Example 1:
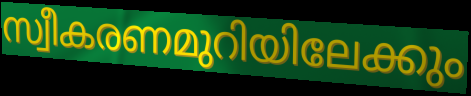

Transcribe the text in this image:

സ്വീകരണമുറിയിലേക്കും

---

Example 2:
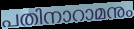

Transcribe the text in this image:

പതിനാറാമനും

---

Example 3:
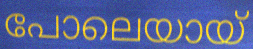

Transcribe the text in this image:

പോലെയായ്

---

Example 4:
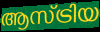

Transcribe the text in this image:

ആസ്ട്രിയ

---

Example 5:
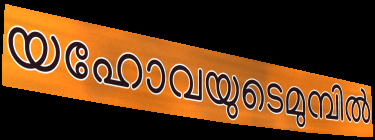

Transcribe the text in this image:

യഹോവയുടെമുമ്പിൽ